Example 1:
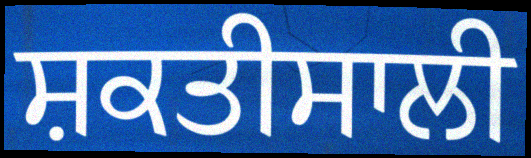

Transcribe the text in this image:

ਸ਼ਕਤੀਸਾਲੀ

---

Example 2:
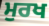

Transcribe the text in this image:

ਮੁਰਖ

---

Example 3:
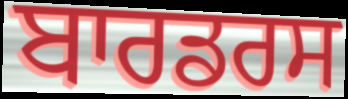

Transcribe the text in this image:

ਬਾਰਡਰਸ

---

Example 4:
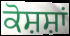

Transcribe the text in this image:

ਕੋਸ਼ਸ਼ਾਂ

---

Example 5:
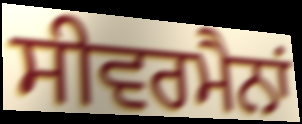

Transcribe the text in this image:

ਸੀਵਰਮੈਨਾਂ